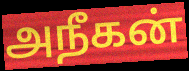
அநீகன்